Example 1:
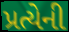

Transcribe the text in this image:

પ્રત્યેની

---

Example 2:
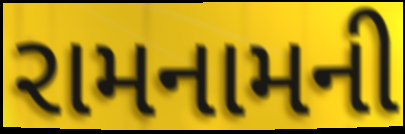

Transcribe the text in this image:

રામનામની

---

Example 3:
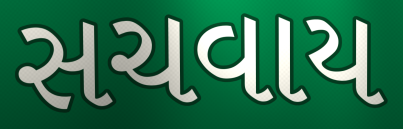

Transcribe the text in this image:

સચવાય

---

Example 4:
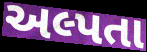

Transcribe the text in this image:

અલ્પતા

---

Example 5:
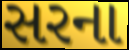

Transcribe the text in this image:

સરના